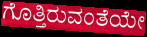
ಗೊತ್ತಿರುವಂತೆಯೇ